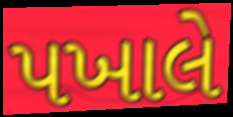
પખાલે